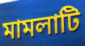
মামলাটি